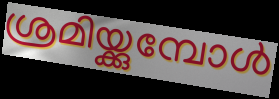
ശ്രമിയ്ക്കുമ്പോൾ